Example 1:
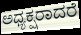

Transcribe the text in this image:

ಅಧ್ಯಕ್ಷರಾದರೆ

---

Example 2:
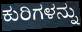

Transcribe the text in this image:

ಕುರಿಗಳನ್ನು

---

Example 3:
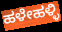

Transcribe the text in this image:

ಹಳೇಹಳ್ಳಿ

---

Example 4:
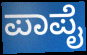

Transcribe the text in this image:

ಪಾಪೈ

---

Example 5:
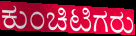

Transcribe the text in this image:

ಕುಂಚಿಟಿಗರು